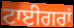
ਟਾਈਗਰਾਂ